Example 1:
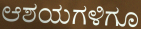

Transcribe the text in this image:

ಆಶಯಗಳಿಗೂ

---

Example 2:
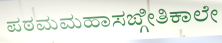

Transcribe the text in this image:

ಪಠಮಮಹಾಸಙ್ಗೀತಿಕಾಲೇ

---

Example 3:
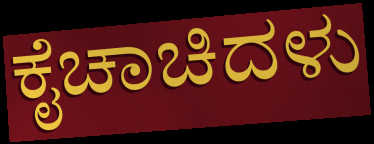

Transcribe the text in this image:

ಕೈಚಾಚಿದಳು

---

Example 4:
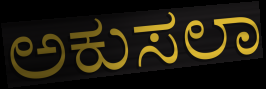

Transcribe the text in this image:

ಅಕುಸಲಾ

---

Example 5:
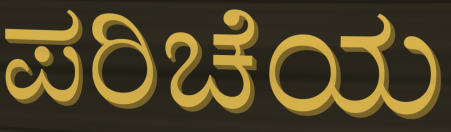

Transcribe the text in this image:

ಪರಿಚೆಯ